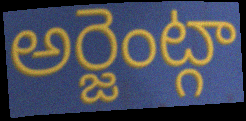
అర్జెంట్గా